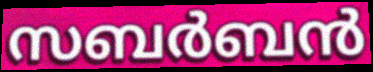
സബർബൻ